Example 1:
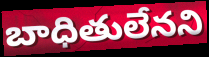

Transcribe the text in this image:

బాధితులేనని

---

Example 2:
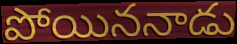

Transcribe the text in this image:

పోయిననాడు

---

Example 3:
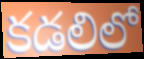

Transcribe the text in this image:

కడలిలో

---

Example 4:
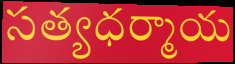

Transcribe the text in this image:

సత్యధర్మాయ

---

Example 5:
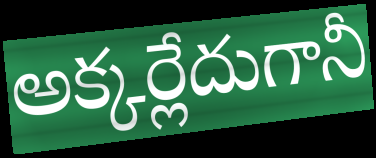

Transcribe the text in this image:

అక్కర్లేదుగానీ